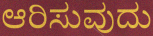
ಆರಿಸುವುದು